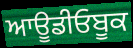
ਆਊਡੀਓਬੂਕ